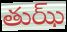
తుఝ్